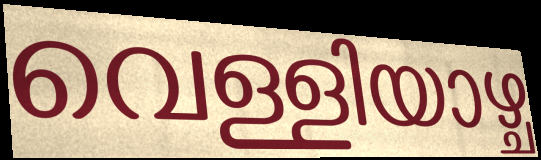
വെള്ളിയാഴ്ച